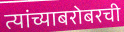
त्यांच्याबरोबरची